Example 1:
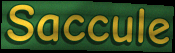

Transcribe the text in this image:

Saccule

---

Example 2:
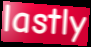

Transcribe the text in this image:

lastly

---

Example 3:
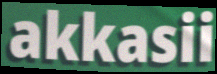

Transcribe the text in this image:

akkasii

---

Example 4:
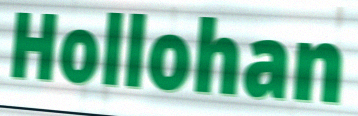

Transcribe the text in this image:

Hollohan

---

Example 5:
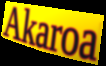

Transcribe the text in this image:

Akaroa